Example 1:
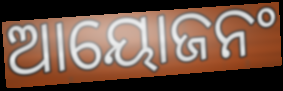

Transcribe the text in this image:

ଆୟୋଜନଂ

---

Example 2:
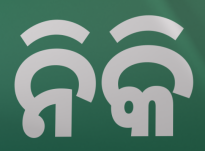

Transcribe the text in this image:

ନିକି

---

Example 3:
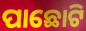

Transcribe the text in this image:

ପାଛୋଟି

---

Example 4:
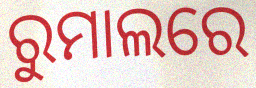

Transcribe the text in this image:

ରୁମାଲରେ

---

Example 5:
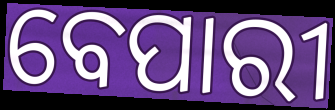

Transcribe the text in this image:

ବେପାରୀ